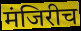
मंजिरीच